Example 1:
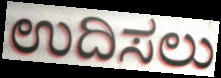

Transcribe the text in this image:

ಉದಿಸಲು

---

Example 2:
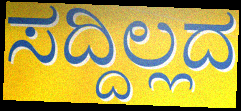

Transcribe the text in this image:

ಸದ್ದಿಲ್ಲದ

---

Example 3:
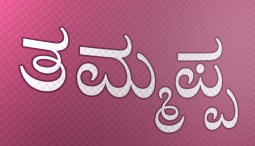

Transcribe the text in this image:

ತಮ್ಮಪ್ಪ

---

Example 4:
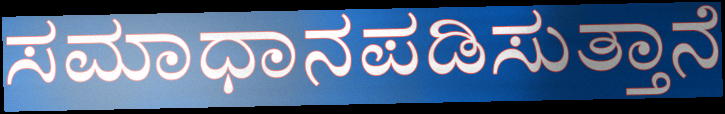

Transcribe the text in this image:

ಸಮಾಧಾನಪಡಿಸುತ್ತಾನೆ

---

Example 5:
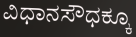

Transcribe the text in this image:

ವಿಧಾನಸೌಧಕ್ಕೂ